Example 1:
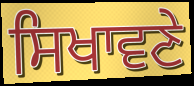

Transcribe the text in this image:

ਸਿਖਾਵਣੇ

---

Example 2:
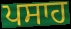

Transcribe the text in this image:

ਪਸਾਹ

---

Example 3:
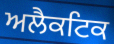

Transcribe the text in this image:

ਅਲੈਕਟਿਕ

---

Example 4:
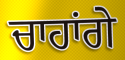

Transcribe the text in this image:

ਚਾਹਾਂਗੇ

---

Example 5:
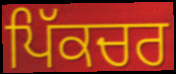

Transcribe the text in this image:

ਪਿੱਕਚਰ